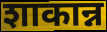
शाकान्न